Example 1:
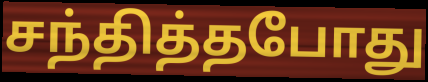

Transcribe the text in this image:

சந்தித்தபோது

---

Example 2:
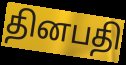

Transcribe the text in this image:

தினபதி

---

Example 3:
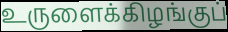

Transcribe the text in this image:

உருளைக்கிழங்குப்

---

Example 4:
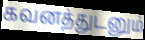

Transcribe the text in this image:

கவனத்துடனும்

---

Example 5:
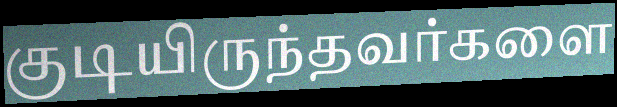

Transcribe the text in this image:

குடியிருந்தவர்களை